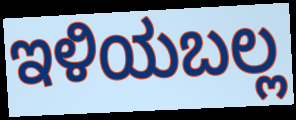
ಇಳಿಯಬಲ್ಲ